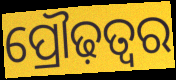
ପ୍ରୌଢ଼ତ୍ୱର